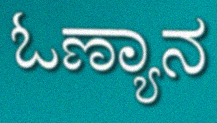
ಓಣ್ಯಾನ